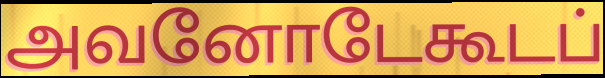
அவனோடேகூடப்